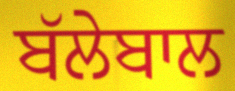
ਬੱਲੇਬਾਲ